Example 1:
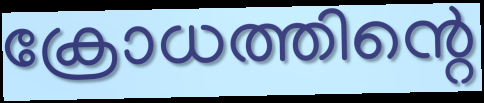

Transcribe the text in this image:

ക്രോധത്തിന്റെ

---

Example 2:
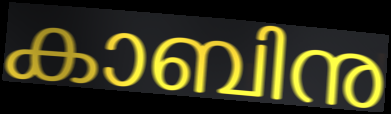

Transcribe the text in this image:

കാബിനു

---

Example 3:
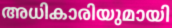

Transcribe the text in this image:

അധികാരിയുമായി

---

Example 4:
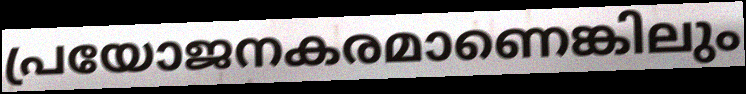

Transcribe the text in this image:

പ്രയോജനകരമാണെങ്കിലും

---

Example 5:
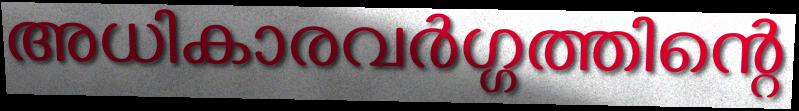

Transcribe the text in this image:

അധികാരവർഗ്ഗത്തിന്റെ